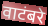
वाटंबरे